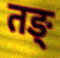
तङ्